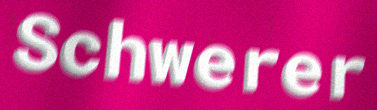
Schwerer